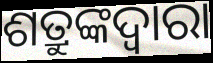
ଶତ୍ରୁଙ୍କଦ୍ୱାରା